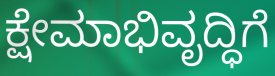
ಕ್ಷೇಮಾಭಿವೃದ್ಧಿಗೆ